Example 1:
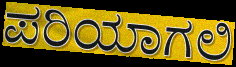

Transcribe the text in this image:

ಪರಿಯಾಗಲಿ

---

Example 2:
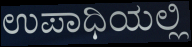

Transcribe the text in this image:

ಉಪಾಧಿಯಲ್ಲಿ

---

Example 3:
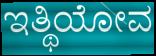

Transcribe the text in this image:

ಇತ್ಥಿಯೋವ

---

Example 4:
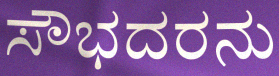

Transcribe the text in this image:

ಸೌಭದರನು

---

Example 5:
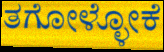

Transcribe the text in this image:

ತಗೋಳ್ಳೋಕೆ